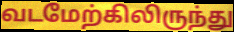
வடமேற்கிலிருந்து